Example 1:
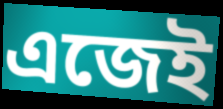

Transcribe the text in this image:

এজেই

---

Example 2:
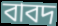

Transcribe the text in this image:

বাবদ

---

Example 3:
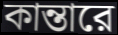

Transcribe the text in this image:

কান্তারে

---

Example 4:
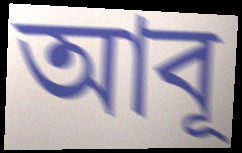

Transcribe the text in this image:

আবূ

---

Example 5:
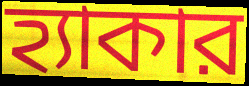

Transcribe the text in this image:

হ্যাকার